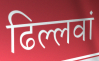
ढिल्लवां